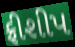
ફ્રીશીપ